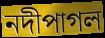
নদীপাগল